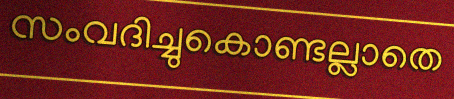
സംവദിച്ചുകൊണ്ടല്ലാതെ